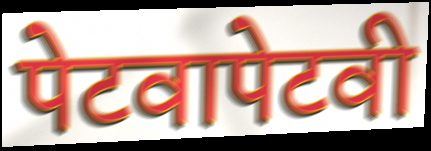
पेटवापेटवी